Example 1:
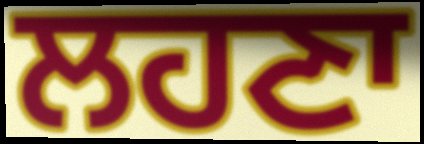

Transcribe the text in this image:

ਲਹਣਾ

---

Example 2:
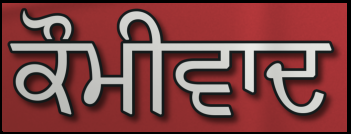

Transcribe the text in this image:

ਕੌਮੀਵਾਦ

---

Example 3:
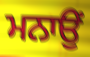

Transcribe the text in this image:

ਮਨਾਉਂ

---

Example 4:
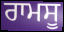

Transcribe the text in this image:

ਰਾਮਸੂ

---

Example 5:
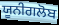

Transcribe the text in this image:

ਯੂਨੀਗਲੋਬ